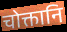
चोक्तानि